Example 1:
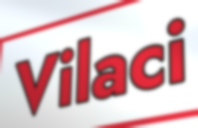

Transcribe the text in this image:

Vilaci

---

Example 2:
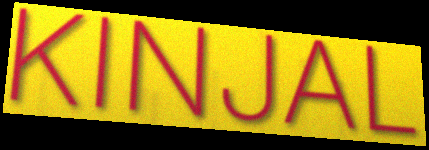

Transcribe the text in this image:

KINJAL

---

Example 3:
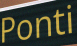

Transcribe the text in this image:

Ponti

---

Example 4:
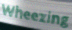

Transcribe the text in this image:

Wheezing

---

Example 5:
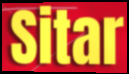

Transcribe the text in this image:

Sitar